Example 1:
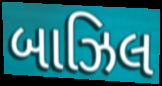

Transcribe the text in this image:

બાઝિલ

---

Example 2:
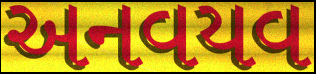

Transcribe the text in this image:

અનવયવ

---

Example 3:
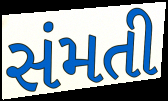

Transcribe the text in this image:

સંમતી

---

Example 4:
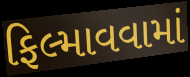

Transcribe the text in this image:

ફિલ્માવવામાં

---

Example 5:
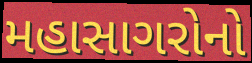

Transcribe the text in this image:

મહાસાગરોનો